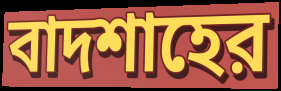
বাদশাহের